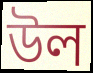
উল